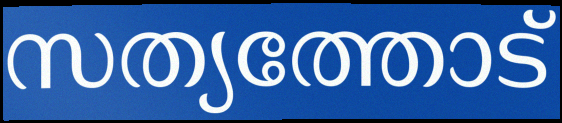
സത്യത്തോട്